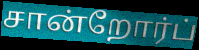
சான்றோர்ப்